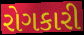
રોગકારી